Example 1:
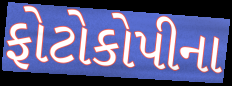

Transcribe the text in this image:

ફોટોકોપીના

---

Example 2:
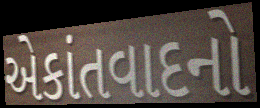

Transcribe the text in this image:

એકાંતવાદનો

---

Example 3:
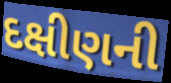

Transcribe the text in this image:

દક્ષીણની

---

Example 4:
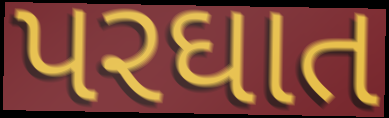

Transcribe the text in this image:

પરઘાત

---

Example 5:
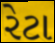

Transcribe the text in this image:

રેટા